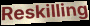
Reskilling